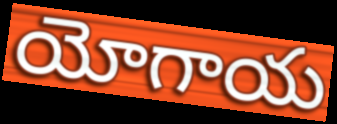
యోగాయ